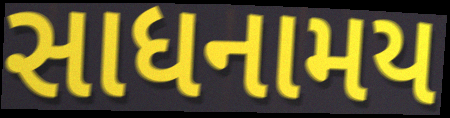
સાધનામય